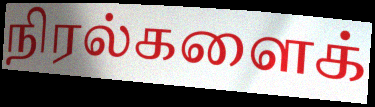
நிரல்களைக்